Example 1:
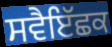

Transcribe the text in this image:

ਸਵੈਇੱਛਕ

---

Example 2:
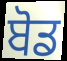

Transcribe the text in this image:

ਬੋਡ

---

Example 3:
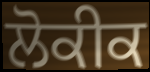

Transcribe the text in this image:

ਲੋਕੀਕ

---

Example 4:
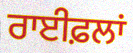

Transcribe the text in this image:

ਰਾਈਫ਼ਲਾਂ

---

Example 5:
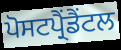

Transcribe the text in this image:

ਪੋਸਟਪ੍ਰੈਂਡੈਂਟਲ